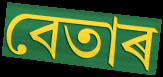
বেতাৰ